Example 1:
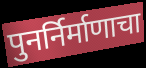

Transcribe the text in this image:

पुनर्निर्माणाचा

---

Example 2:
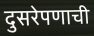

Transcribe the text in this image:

दुसरेपणाची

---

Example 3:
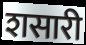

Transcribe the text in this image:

शसारी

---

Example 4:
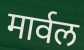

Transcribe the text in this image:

मार्वल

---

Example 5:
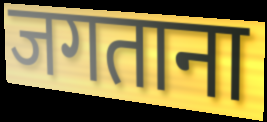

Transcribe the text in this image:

जगताना